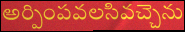
అర్పింపవలసివచ్చెను